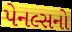
પેનલ્સનો